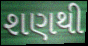
શણથી